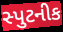
સ્પુટનીક